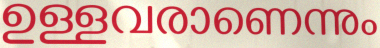
ഉള്ളവരാണെന്നും